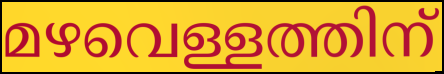
മഴവെള്ളത്തിന്